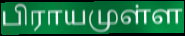
பிராயமுள்ள